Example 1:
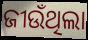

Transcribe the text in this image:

ଜୀଉଁଥିଲା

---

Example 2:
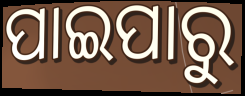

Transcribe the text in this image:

ପାଇପାରୁ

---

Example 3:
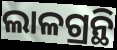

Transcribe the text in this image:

ଲାଳଗ୍ରନ୍ଥି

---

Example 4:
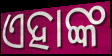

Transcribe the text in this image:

ଏହାଙ୍କ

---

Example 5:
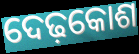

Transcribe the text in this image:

ଦେଢ଼କୋଶ